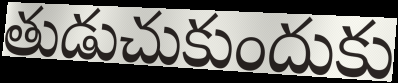
తుడుచుకుందుకు